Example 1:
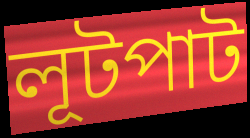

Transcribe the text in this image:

লূটপাট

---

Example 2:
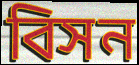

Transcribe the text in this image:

বিসন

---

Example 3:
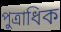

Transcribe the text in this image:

পুত্রাধিক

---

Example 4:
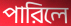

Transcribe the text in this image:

পারিলে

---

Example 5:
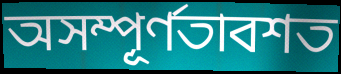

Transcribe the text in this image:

অসম্পূর্ণতাবশত